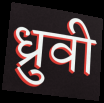
ध्रुवी